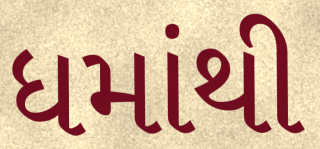
ધમાંથી